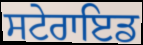
ਸਟੇਰਾਇਡ